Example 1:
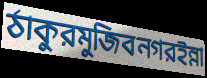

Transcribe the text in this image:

ঠাকুরমুজিবনগরইন্না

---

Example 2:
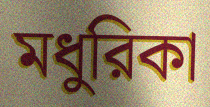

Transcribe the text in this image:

মধুরিকা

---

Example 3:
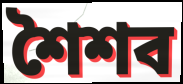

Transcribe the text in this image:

শৈশব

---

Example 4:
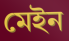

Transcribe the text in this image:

মেইন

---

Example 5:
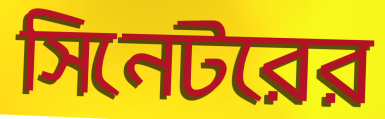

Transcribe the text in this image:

সিনেটরের